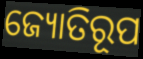
ଜ୍ୟୋତିରୂପ